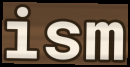
ism